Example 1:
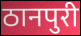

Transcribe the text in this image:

ठानपुरी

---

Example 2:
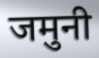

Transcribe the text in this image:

जमुनी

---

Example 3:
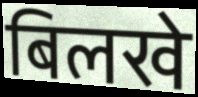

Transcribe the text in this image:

बिलखे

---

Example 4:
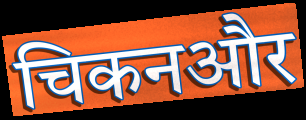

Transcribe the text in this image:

चिकनऔर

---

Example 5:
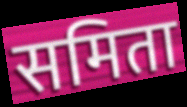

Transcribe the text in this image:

समिता